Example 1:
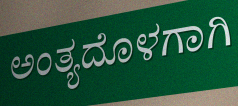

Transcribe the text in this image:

ಅಂತ್ಯದೊಳಗಾಗಿ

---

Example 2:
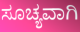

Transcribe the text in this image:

ಸೂಚ್ಯವಾಗಿ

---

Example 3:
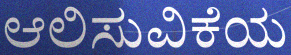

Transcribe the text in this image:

ಆಲಿಸುವಿಕೆಯ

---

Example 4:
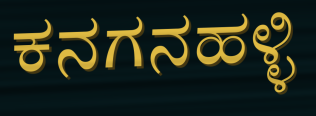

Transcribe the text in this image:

ಕನಗನಹಳ್ಳಿ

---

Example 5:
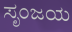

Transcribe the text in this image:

ಸೃಂಜಯ